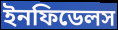
ইনফিডেলস